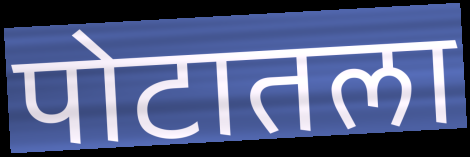
पोटातला